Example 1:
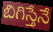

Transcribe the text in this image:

బిగిస్తేనే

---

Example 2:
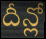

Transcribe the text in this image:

దీన్లో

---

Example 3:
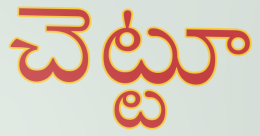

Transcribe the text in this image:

చెట్టూ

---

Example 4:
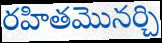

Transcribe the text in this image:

రహితమొనర్చి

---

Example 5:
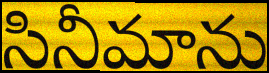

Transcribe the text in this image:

సినీమాను